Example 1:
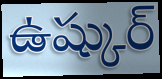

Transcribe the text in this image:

ఉష్కుర్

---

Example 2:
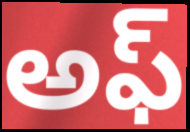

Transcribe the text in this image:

అఫ్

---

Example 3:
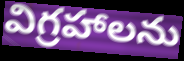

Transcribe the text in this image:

విగ్రహాలను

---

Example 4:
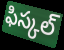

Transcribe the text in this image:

ఫిస్కల్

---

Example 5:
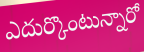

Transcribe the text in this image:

ఎదుర్కొంటున్నారో